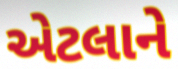
એટલાને